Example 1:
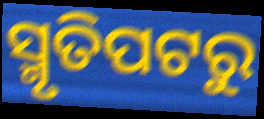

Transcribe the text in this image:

ସ୍ମୃତିପଟରୁ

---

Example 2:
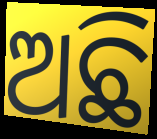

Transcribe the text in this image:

ଅଛି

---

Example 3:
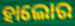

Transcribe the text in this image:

ହାଲୋର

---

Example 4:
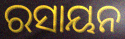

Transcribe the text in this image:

ରସାୟନ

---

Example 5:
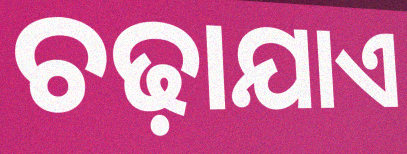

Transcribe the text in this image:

ଚଢ଼ାଯାଏ